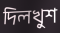
দিলখুশ